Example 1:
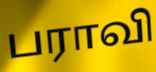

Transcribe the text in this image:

பராவி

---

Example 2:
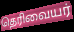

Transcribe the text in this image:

தெரிவையர்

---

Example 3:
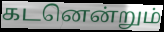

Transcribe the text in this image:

கடனென்றும்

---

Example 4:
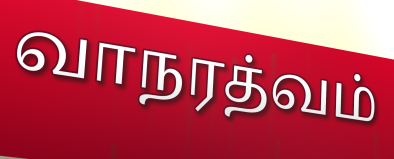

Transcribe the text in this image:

வாநரத்வம்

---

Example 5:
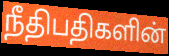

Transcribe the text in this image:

நீதிபதிகளின்